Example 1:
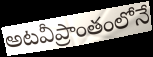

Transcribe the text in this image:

అటవీప్రాంతంలోనే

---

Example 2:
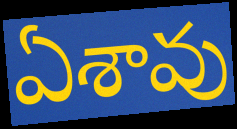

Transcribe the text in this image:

ఏశావు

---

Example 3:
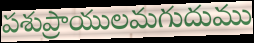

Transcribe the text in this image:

పశుప్రాయులమగుదుము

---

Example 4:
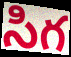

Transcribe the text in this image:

సిగ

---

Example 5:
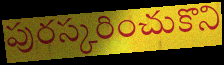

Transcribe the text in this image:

పురస్కరించుకొని